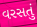
વરસતું